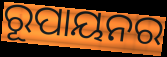
ରୂପାୟନର